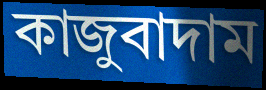
কাজুবাদাম